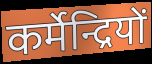
कर्मेन्द्रियों